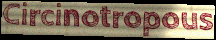
Circinotropous